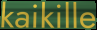
kaikille